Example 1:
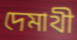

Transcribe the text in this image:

দেমাথী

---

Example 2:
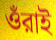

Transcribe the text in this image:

ওঁরাই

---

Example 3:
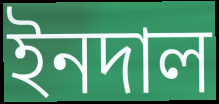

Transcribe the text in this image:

ইনদাল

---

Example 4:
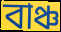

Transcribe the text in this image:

বাঞ্চ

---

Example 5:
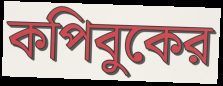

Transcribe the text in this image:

কপিবুকের